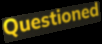
Questioned